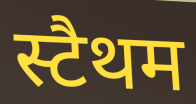
स्टैथम